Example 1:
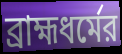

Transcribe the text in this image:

ব্রাহ্মধর্মের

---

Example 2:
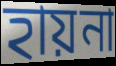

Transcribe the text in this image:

হায়না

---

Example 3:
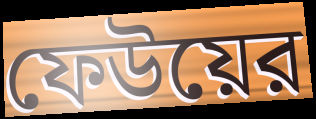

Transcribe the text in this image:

ফেউয়ের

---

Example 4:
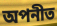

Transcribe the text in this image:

অপনীত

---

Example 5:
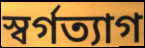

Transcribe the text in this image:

স্বর্গত্যাগ